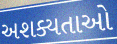
અશક્યતાઓ